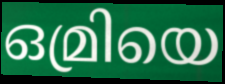
ഒമ്രിയെ